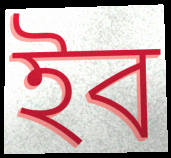
ইব